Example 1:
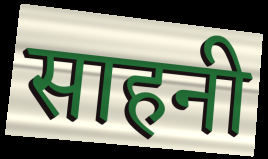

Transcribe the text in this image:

साहनी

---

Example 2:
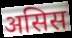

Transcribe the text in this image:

असिस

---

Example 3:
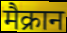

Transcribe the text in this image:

मैक्रान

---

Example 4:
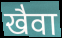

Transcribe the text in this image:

खैवा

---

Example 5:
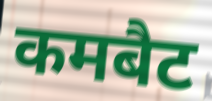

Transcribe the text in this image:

कमबैट